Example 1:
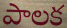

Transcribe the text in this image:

పాలక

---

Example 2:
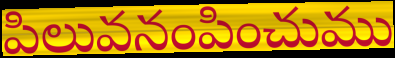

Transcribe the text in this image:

పిలువనంపించుము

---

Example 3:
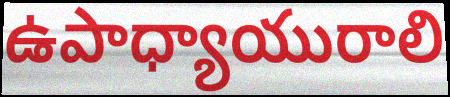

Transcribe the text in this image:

ఉపాధ్యాయురాలి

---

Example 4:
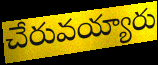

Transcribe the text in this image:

చేరువయ్యారు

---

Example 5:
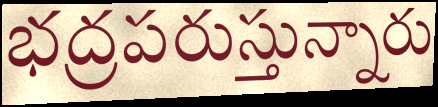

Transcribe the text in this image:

భద్రపరుస్తున్నారు